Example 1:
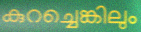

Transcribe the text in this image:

കുറച്ചെങ്കിലും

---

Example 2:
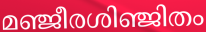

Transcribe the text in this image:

മഞ്ജീരശിഞ്ജിതം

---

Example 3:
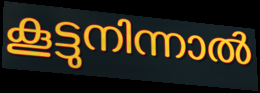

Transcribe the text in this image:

കൂട്ടുനിന്നാൽ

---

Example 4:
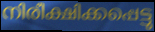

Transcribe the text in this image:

നിരീക്ഷിക്കപ്പെട്ടു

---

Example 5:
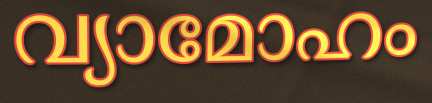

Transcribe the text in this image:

വ്യാമോഹം